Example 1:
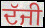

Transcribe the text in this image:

ਦੱਜੀ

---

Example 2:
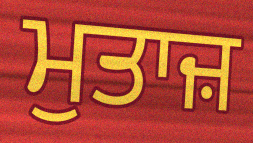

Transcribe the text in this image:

ਮੁਤਾਜ਼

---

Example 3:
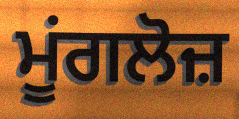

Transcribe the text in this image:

ਮੂਂਗਲੋਜ਼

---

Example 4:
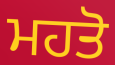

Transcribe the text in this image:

ਮਹਤੋ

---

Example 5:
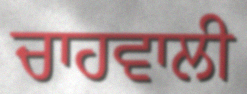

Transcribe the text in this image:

ਚਾਹਵਾਲੀ